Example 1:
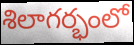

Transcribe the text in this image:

శిలాగర్భంలో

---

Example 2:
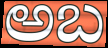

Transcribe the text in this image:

అబ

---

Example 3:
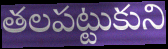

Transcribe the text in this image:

తలపట్టుకుని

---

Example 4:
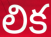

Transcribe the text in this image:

లిక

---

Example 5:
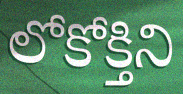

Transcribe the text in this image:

లోకోక్తిని